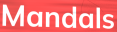
Mandals